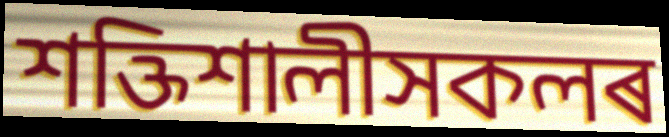
শক্তিশালীসকলৰ